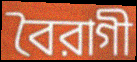
বৈরাগী